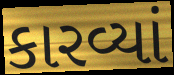
કારવ્યાં